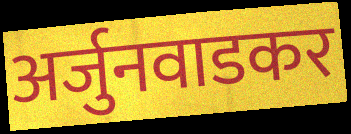
अर्जुनवाडकर